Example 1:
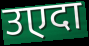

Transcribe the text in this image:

उएदा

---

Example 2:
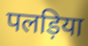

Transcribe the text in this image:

पलड़िया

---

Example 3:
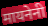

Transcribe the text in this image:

मायनेनी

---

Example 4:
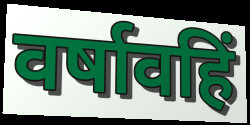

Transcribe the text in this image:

वर्षावहिं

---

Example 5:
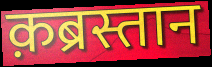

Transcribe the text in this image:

क़ब्रस्तान